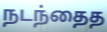
நடந்தைத